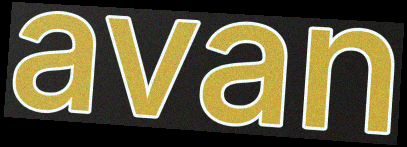
avan